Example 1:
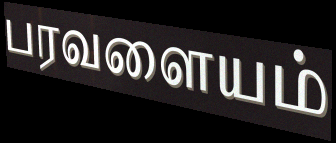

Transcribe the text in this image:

பரவளையம்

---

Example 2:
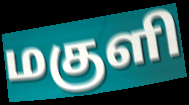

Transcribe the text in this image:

மகுளி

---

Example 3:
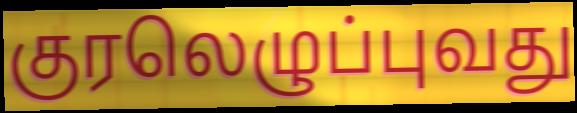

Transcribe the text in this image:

குரலெழுப்புவது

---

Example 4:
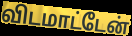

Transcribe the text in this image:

விடமாட்டேன்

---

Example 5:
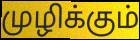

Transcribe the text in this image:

முழிக்கும்